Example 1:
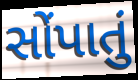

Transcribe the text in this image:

સોંપાતું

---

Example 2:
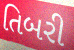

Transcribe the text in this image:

તિબરી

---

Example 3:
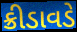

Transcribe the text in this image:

ક્રીડાવડે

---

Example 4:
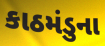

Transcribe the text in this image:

કાઠમંડુના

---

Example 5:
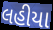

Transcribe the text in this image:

લહીયા